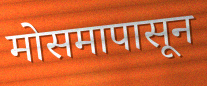
मोसमापासून